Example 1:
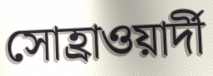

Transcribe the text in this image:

সোহ্রাওয়ার্দী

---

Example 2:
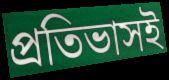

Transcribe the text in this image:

প্রতিভাসই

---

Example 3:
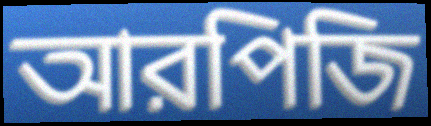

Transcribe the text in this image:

আরপিজি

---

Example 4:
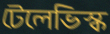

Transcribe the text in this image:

টেলেভিস্ক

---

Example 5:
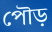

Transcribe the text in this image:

পৌড়